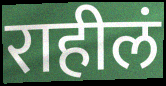
राहीलं